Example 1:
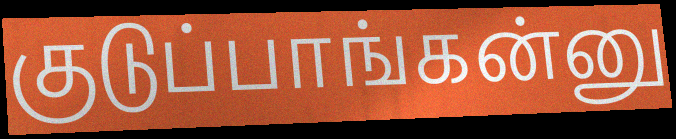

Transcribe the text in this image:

குடுப்பாங்கன்னு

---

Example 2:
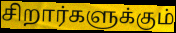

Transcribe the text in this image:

சிறார்களுக்கும்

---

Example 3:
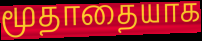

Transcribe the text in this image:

மூதாதையாக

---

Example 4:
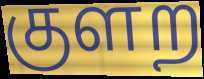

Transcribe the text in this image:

குளற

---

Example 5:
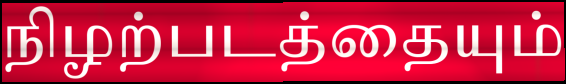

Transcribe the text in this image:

நிழற்படத்தையும்